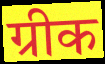
ग्रीक